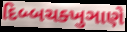
દિબ્બચક્ખુઞાણે